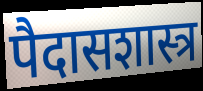
पैदासशास्त्र